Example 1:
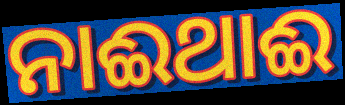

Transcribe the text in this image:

ନାଈଥାଈ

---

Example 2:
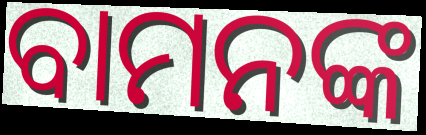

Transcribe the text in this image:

ବାମନଙ୍କ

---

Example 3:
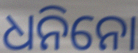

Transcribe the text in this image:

ଧନିନୋ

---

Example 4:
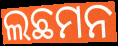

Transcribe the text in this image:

ଲଛମନ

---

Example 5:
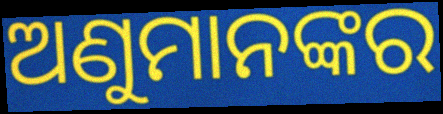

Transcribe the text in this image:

ଅଣୁମାନଙ୍କର